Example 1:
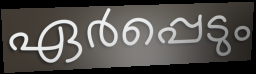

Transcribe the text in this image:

ഏർപ്പെടും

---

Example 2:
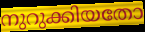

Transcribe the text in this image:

നുറുക്കിയതോ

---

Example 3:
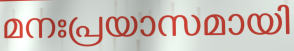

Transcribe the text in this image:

മനഃപ്രയാസമായി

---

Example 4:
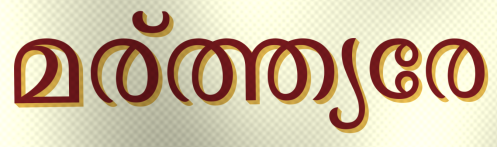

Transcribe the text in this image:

മര്ത്ത്യരേ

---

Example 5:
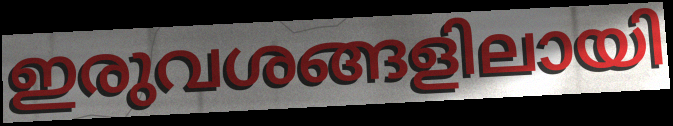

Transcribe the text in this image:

ഇരുവശങ്ങളിലായി